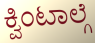
ಕ್ವಿಂಟಾಲ್ಗೆ